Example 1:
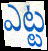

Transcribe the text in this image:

ఎట్ట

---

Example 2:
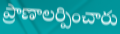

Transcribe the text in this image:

ప్రాణాలర్పించారు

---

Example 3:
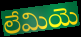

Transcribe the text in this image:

లేమియె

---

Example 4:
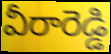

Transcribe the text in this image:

వీరారెడ్డి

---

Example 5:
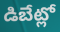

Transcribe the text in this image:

డిబేట్లో